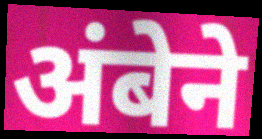
अंबेने